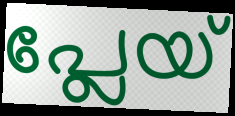
പ്ലേയ്